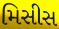
મિસીસ